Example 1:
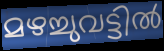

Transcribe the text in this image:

മഴച്ചുവട്ടിൽ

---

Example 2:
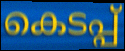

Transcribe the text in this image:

കെടപ്പ്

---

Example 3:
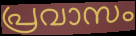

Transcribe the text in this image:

പ്രവാസം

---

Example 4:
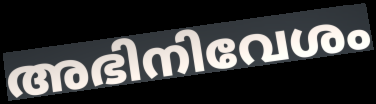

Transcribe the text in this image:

അഭിനിവേശം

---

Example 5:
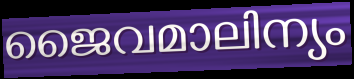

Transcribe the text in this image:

ജൈവമാലിന്യം